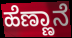
ಹೆಣ್ಣಾನೆ